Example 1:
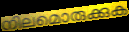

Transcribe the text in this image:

നിലമൊരുക്കുക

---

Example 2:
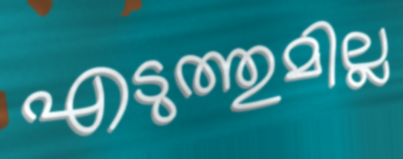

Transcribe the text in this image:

എടുത്തുമില്ല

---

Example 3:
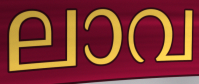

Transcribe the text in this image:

ലാവ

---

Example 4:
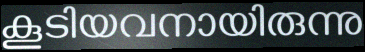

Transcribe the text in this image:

കൂടിയവനായിരുന്നു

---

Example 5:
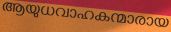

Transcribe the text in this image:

ആയുധവാഹകന്മാരായ